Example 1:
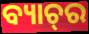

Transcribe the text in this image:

ବ୍ୟାଚ୍‌ର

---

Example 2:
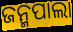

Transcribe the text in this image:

ଜନ୍ମପାଲା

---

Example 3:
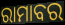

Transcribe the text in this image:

ରାମାବର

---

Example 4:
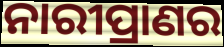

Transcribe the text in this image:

ନାରୀପ୍ରାଣର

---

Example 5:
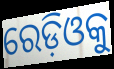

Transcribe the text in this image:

ରେଡ଼ିଓକୁ